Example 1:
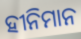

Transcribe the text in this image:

ହୀନିମାନ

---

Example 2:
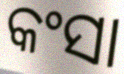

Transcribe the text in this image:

କଂସା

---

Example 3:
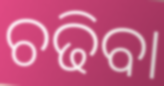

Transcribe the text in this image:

ଚଢିବା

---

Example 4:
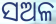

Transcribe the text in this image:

ସଅଳ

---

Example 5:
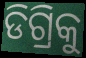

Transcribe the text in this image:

ଡିଗ୍ରିକୁ